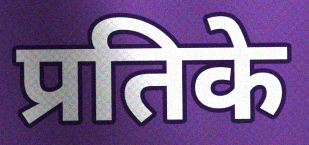
प्रतिके